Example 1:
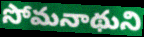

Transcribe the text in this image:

సోమనాథుని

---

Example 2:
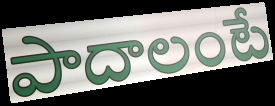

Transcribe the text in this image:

పాదాలంటే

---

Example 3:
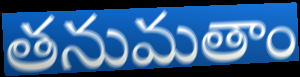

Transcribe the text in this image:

తనుమతాం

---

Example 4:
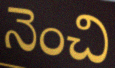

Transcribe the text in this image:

నెంచి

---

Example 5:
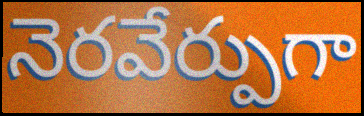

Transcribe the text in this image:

నెరవేర్పుగా